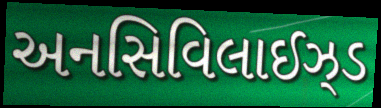
અનસિવિલાઈઝ્ડ